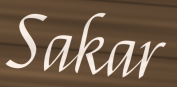
Sakar